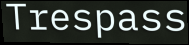
Trespass